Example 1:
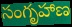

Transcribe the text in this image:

సంగృహాణ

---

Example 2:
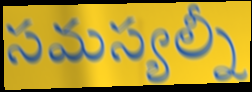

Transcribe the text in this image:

సమస్యల్నీ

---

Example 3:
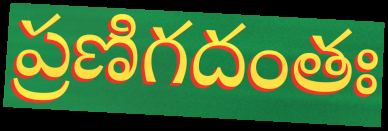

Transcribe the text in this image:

ప్రణిగదంతః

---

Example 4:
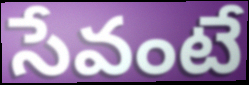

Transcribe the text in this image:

సేవంటే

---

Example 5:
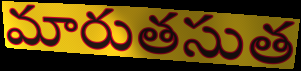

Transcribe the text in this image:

మారుతసుత